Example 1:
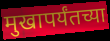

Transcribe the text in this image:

मुखापर्यंतच्या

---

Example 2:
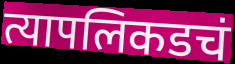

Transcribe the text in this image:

त्यापलिकडचं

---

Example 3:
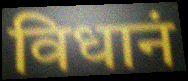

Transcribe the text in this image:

विधानं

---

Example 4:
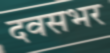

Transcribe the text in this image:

दवसभर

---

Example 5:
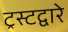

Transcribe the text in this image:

ट्रस्टद्वारे